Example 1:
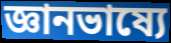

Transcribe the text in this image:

জ্ঞানভাষ্যে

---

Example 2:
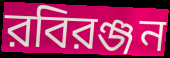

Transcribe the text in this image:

রবিরঞ্জন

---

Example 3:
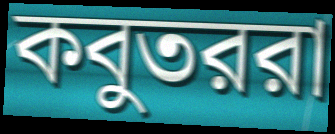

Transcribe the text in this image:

কবুতররা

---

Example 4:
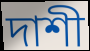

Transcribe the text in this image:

দাশী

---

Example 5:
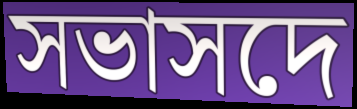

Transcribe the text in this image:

সভাসদে